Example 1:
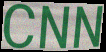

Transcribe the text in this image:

CNN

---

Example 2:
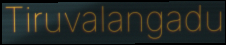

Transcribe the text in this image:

Tiruvalangadu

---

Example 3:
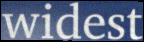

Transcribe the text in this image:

widest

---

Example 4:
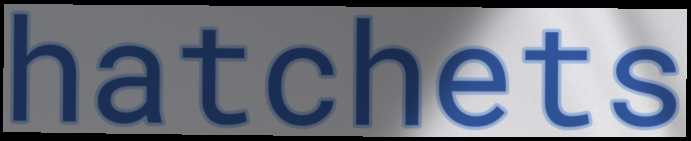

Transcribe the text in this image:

hatchets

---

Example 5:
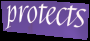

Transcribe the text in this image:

protects